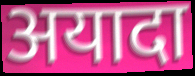
अयादा